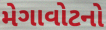
મેગાવોટનો